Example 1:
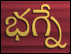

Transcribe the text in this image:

భగ్నే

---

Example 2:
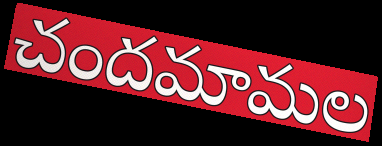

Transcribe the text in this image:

చందమామల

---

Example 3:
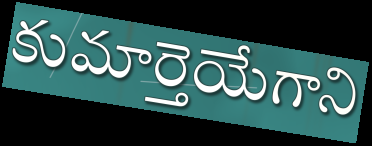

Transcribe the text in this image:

కుమార్తెయేగాని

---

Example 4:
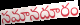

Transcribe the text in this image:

సమానదూరం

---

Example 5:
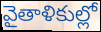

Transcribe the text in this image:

వైతాళికుల్లో